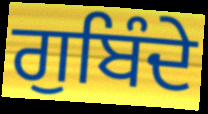
ਗੁਬਿੰਦੇ